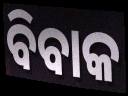
ବିବାକ